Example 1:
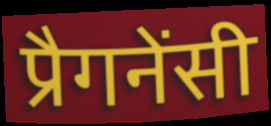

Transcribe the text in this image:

प्रैगनेंसी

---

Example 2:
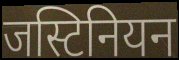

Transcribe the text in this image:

जस्टिनियन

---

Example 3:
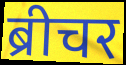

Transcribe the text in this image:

ब्रीचर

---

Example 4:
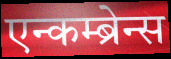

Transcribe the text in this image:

एन्कम्ब्रेन्स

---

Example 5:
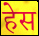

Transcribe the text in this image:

हेस